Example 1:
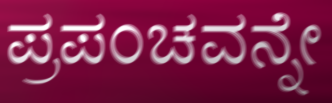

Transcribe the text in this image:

ಪ್ರಪಂಚವನ್ನೇ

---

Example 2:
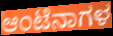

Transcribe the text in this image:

ಆಂಟೆನಾಗಳ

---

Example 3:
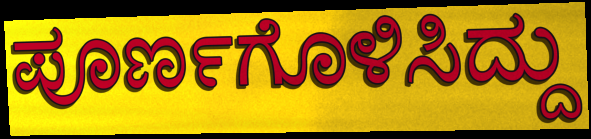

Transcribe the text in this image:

ಪೂರ್ಣಗೊಳಿಸಿದ್ದು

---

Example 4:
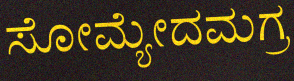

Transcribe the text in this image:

ಸೋಮ್ಯೇದಮಗ್ರ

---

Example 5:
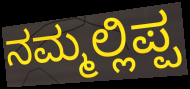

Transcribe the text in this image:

ನಮ್ಮಲ್ಲಿಪ್ಪ